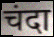
चंदा